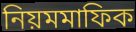
নিয়মমাফিক